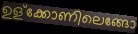
ഉള്ക്കോണിലെങ്ങോ